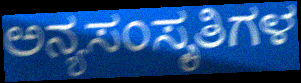
ಅನ್ಯಸಂಸ್ಕೃತಿಗಳ